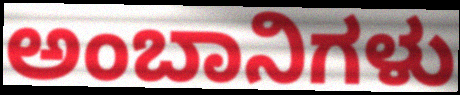
ಅಂಬಾನಿಗಳು